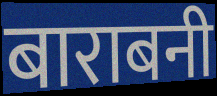
बाराबनी